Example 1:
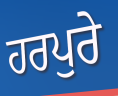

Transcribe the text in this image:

ਹਰਪੁਰੇ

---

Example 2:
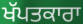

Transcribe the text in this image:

ਖੱਪਤਕਾਰਾ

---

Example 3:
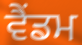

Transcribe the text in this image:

ਵੈਂਡਮ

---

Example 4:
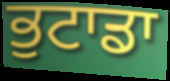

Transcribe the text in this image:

ਭੁਟਾਡਾ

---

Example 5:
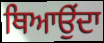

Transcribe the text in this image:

ਥਿਆਉਂਦਾ